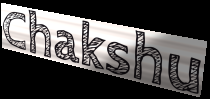
Chakshu